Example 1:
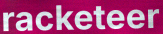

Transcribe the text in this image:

racketeer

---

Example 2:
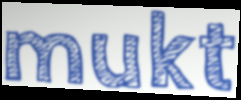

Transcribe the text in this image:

mukt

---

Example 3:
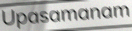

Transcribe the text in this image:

Upasamanam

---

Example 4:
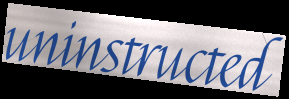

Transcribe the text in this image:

uninstructed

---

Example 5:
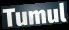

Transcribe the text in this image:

Tumul